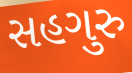
સહગુરુ